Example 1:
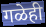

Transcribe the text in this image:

गळेही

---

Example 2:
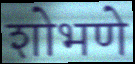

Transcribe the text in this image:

शोभणे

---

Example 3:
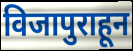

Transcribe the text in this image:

विजापुराहून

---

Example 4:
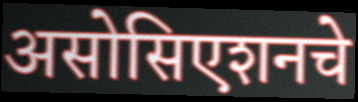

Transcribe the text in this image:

असोसिएशनचे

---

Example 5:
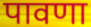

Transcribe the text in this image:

पावणा